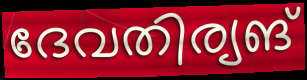
ദേവതിര്യങ്